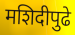
मशिदीपुढे